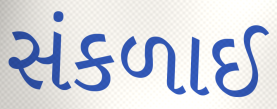
સંકળાઈ